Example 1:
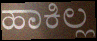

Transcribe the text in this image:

ಹಾಕಿಲ್ಲ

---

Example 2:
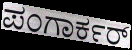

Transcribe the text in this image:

ಪಂಗಾರ್ಕರ್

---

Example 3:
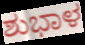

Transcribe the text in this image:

ಶುಭಾಳ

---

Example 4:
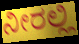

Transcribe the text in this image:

ನೀರಲ್ಲಿ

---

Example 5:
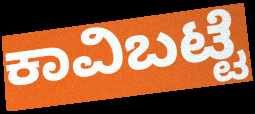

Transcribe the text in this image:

ಕಾವಿಬಟ್ಟೆ